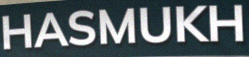
HASMUKH